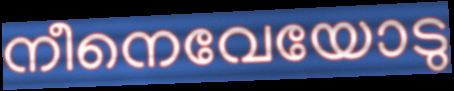
നീനെവേയോടു